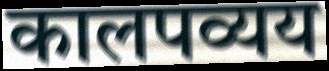
कालपव्यय